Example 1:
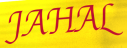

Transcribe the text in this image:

JAHAL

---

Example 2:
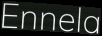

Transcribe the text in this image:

Ennela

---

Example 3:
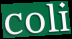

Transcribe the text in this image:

coli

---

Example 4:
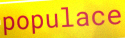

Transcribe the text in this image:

populace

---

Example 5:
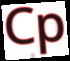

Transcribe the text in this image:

Cp